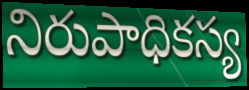
నిరుపాధికస్య